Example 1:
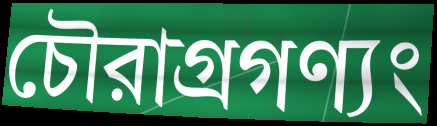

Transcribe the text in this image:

চৌরাগ্রগণ্যং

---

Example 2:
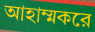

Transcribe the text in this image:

আহাম্মকরে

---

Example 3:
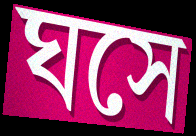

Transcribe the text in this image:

ঘসে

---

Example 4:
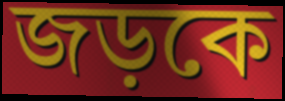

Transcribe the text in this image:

জড়কে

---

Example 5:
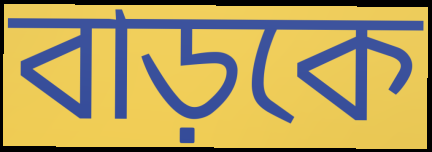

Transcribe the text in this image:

বাড়কে